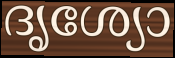
ദൃശ്യോ